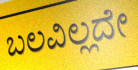
ಬಲವಿಲ್ಲದೇ